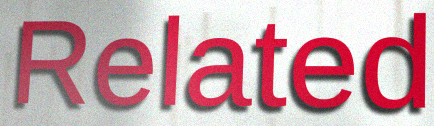
Related